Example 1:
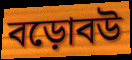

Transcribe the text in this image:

বড়োবউ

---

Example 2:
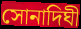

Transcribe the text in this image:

সোনাদিঘী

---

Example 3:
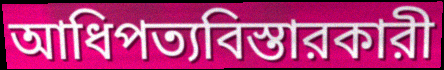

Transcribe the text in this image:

আধিপত্যবিস্তারকারী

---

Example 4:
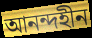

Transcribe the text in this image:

আনন্দহীন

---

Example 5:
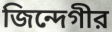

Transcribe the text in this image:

জিন্দেগীর